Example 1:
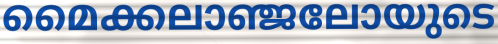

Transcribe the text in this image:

മൈക്കലാഞ്ജലോയുടെ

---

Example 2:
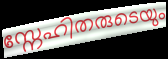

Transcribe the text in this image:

സ്നേഹിതരുടെയും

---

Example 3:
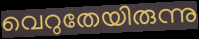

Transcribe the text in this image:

വെറുതേയിരുന്നു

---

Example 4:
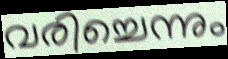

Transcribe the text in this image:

വരിച്ചെന്നും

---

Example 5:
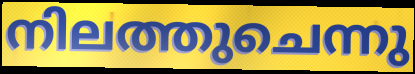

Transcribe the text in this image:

നിലത്തുചെന്നു